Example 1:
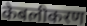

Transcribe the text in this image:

केबलीकरण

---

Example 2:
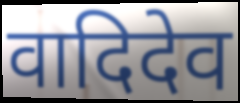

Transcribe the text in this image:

वादिदेव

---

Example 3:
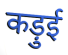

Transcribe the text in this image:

कड़ुई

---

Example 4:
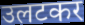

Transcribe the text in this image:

उलटकर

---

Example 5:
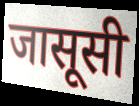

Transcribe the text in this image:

जासूसी